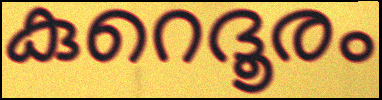
കുറെദൂരം